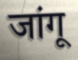
जांगू